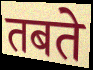
तबते